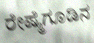
ರೇಷ್ಮೆಗೂಡಿನ